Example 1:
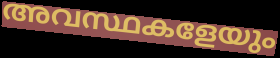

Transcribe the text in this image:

അവസ്ഥകളേയും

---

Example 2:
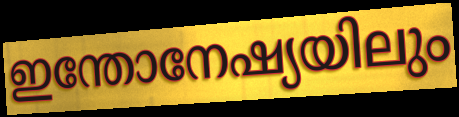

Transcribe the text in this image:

ഇന്തോനേഷ്യയിലും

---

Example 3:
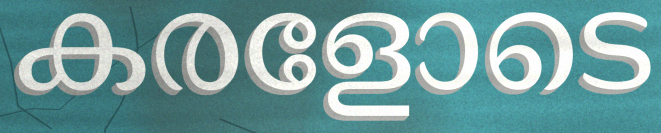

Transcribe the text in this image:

കരളോടെ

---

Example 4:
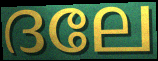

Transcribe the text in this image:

ദലേ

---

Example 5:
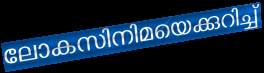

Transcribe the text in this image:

ലോകസിനിമയെക്കുറിച്ച്